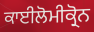
ਕਾਈਲੋਮੀਕ੍ਰੋਨ